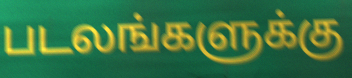
படலங்களுக்கு